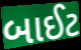
બાઈટ